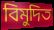
বিমুদিত